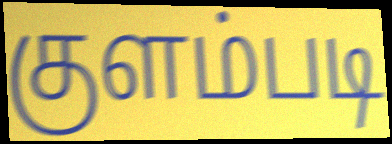
குளம்படி